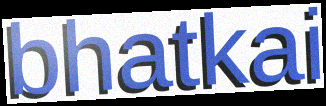
bhatkai